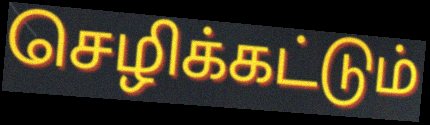
செழிக்கட்டும்